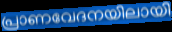
പ്രാണവേദനയിലായി